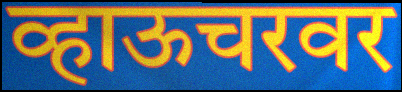
व्हाऊचरवर